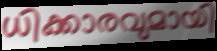
ധിക്കാരവുമായി